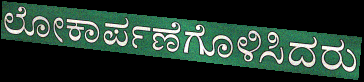
ಲೋಕಾರ್ಪಣೆಗೊಳಿಸಿದರು